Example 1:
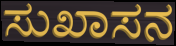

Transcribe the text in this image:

ಸುಖಾಸನ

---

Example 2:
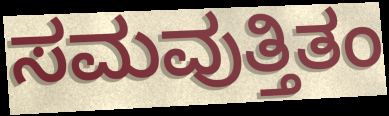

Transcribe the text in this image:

ಸಮವುತ್ತಿತಂ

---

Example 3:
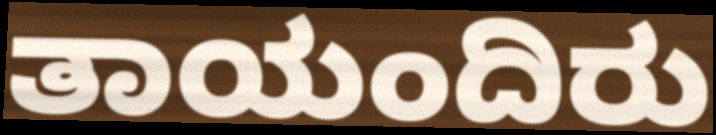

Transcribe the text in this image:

ತಾಯಂದಿರು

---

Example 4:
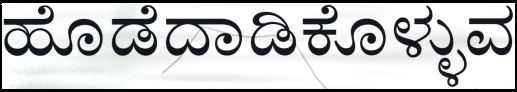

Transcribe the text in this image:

ಹೊಡೆದಾಡಿಕೊಳ್ಳುವ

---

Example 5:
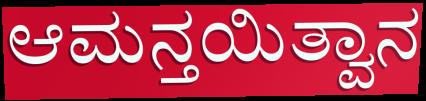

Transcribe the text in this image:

ಆಮನ್ತಯಿತ್ವಾನ